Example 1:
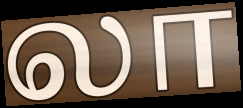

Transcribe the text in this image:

லா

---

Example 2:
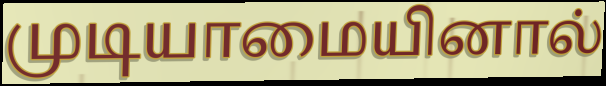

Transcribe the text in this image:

முடியாமையினால்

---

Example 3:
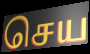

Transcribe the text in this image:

செய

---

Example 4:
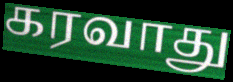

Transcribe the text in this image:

கரவாது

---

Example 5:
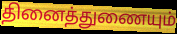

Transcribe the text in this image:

தினைத்துணையும்